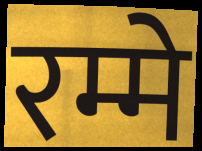
रम्मे